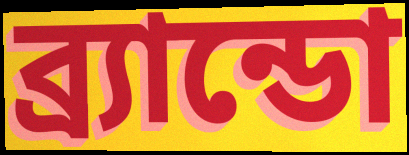
ব্র্যান্ডো